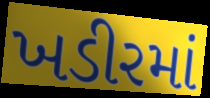
ખડીરમાં